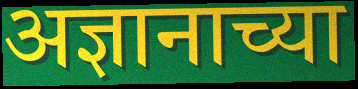
अज्ञानाच्या